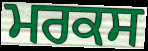
ਮਰਕਸ